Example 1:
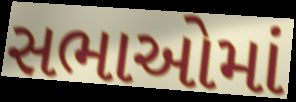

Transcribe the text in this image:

સભાઓમાં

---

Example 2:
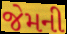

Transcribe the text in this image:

જેમની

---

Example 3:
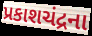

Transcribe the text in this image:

પ્રકાશચંદ્રના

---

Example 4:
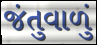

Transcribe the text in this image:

જંતુવાળું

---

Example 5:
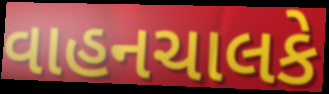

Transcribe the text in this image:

વાહનચાલકે